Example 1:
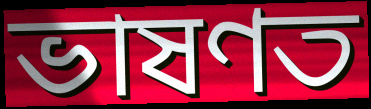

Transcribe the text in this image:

ভাষণত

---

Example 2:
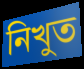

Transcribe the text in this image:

নিখুত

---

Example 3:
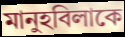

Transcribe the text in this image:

মানুহবিলাকে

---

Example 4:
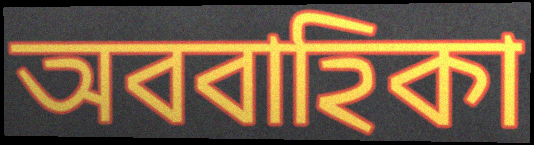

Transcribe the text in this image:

অববাহিকা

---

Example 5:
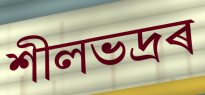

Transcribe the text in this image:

শীলভদ্ৰৰ